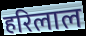
हरिलाल